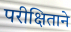
परीक्षिताने